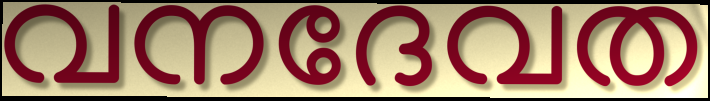
വനദേവത